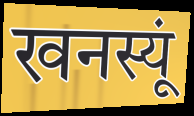
खनस्यूं